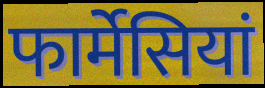
फार्मेसियां